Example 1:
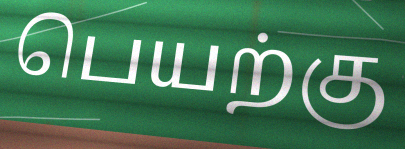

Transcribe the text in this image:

பெயற்கு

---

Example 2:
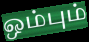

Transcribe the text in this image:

ஒம்பும்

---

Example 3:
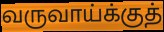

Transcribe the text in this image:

வருவாய்க்குத்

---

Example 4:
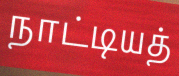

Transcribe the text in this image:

நாட்டியத்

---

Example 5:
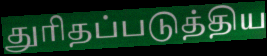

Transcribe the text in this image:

துரிதப்படுத்திய